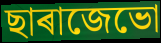
ছাৰাজেভো